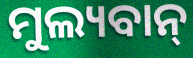
ମୁଲ୍ୟବାନ୍